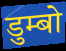
डुम्बो